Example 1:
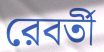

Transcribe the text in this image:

রেবর্তী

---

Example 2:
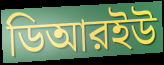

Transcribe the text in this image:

ডিআরইউ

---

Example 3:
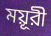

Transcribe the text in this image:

ময়ূরী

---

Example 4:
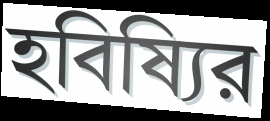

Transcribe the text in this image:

হবিষ্যির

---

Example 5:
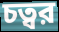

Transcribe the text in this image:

চত্বর